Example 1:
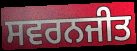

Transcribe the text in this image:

ਸਵਰਨਜੀਤ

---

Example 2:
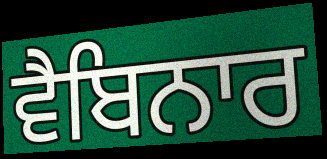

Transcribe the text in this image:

ਵੈਬਿਨਾਰ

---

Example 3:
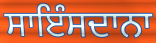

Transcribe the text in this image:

ਸਾਇੰਸਦਾਨਾ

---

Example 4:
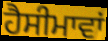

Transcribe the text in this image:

ਹੈਸੀਮਾਵਾਂ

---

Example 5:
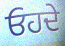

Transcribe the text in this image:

ਓਹਦੇ